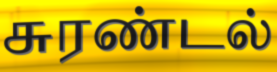
சுரண்டல்